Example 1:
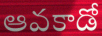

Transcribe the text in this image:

ఆవకాడో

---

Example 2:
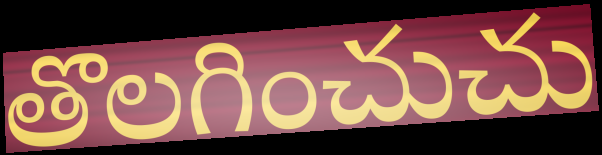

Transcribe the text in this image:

తొలగించుచు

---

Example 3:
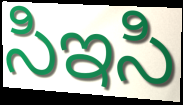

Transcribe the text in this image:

సిఇసి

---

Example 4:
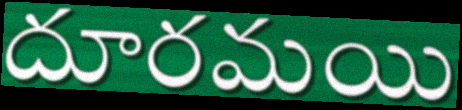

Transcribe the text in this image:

దూరమయి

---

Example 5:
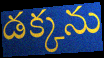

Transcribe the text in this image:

డక్కను